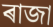
ৰাজা